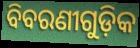
ବିବରଣୀଗୁଡ଼ିକ